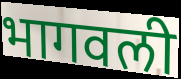
भागवली